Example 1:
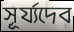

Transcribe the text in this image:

সূর্য্যদেব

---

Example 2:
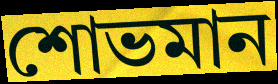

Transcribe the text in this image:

শোভমান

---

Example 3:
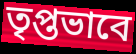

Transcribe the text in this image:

তৃপ্তভাবে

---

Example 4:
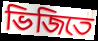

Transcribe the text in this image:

ভিজিতে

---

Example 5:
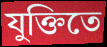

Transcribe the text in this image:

যুক্তিতে